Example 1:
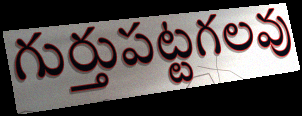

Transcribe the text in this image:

గుర్తుపట్టగలవు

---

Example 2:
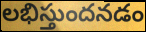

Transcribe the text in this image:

లభిస్తుందనడం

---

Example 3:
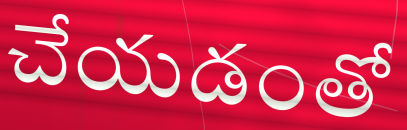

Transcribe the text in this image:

చేయడంతో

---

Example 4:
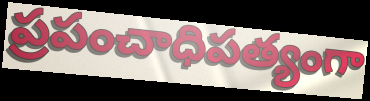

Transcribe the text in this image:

ప్రపంచాధిపత్యంగా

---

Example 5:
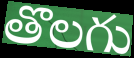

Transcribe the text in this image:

తొలగు